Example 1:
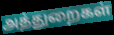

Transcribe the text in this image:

அத்துறைகள்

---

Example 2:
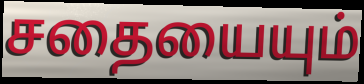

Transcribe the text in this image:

சதையையும்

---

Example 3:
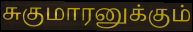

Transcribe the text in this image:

சுகுமாரனுக்கும்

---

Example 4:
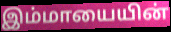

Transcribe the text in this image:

இம்மாயையின்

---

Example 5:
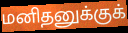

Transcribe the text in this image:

மனிதனுக்குக்